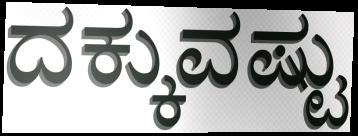
ದಕ್ಕುವಷ್ಟು